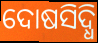
ଦୋଷସିଦ୍ଧି